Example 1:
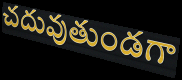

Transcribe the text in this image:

చదువుతుండగా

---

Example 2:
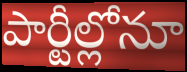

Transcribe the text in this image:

పార్టీల్లోనూ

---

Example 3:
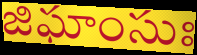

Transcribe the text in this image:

జిఘాంసుః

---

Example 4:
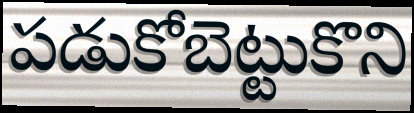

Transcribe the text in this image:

పడుకోబెట్టుకొని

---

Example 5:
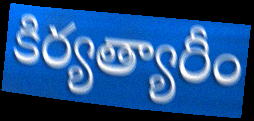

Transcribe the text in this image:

కిర్యత్యారీం